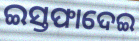
ଇସ୍ତଫାଦେଇ